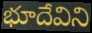
భూదేవిని